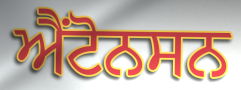
ਐਂਟੋਨਸਨ